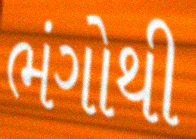
ભંગોથી